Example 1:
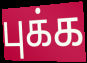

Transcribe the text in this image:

புக்க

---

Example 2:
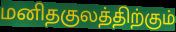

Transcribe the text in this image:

மனிதகுலத்திற்கும்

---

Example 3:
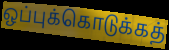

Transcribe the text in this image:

ஒப்புக்கொடுக்கத்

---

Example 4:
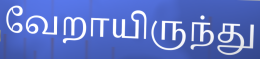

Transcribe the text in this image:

வேறாயிருந்து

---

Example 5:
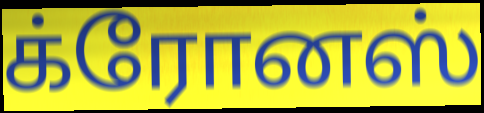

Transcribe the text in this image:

க்ரோனஸ்